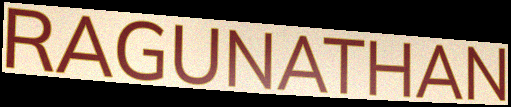
RAGUNATHAN